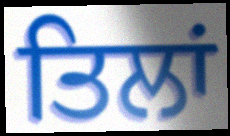
ਤਿਲਾਂ